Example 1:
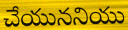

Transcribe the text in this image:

చేయుననియు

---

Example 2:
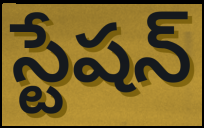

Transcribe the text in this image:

స్టేషన్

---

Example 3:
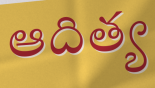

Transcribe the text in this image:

ఆదిత్య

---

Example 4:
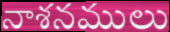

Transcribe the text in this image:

నాశనములు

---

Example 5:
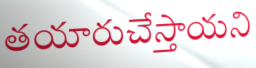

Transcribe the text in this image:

తయారుచేస్తాయని